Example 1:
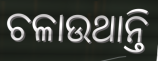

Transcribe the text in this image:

ଚଳାଉଥାନ୍ତି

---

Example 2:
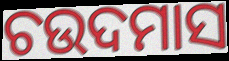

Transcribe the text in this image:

ଚଉଦମାସ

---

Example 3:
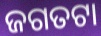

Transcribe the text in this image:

ଜଗତଟା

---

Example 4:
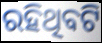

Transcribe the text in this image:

ରହିଥିବଟି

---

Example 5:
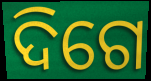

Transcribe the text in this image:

ଦିଗେ